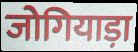
जोगियाड़ा